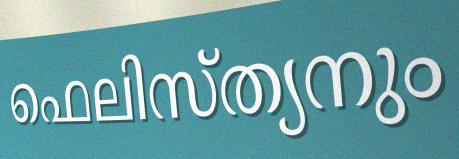
ഫെലിസ്ത്യനും